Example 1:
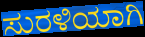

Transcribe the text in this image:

ಸುರಳಿಯಾಗಿ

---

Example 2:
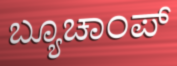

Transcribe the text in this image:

ಬ್ಯೂಚಾಂಪ್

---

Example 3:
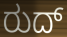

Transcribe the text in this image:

ರುದ್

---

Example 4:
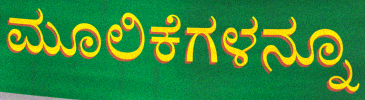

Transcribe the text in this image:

ಮೂಲಿಕೆಗಳನ್ನೂ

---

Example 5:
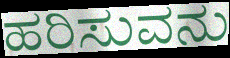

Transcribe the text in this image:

ಹರಿಸುವನು